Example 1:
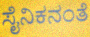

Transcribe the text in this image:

ಸೈನಿಕನಂತೆ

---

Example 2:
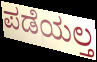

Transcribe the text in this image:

ಪಡೆಯಲ್ತ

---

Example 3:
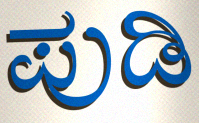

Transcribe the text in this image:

ಪುಡಿ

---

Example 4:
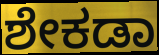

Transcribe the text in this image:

ಶೇಕಡಾ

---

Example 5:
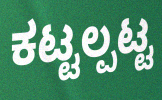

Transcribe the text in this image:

ಕಟ್ಟಲ್ಪಟ್ಟ